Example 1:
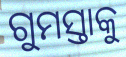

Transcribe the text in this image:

ଗୁମସ୍ତାକୁ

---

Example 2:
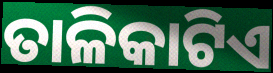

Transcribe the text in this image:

ତାଳିକାଟିଏ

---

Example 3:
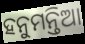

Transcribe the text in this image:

ହନୁମନ୍ତିଆ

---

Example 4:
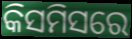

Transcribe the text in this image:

କିସମିସରେ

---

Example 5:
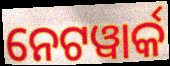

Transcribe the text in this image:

ନେଟୱାର୍କ